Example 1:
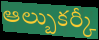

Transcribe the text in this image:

ఆల్బుకర్కీ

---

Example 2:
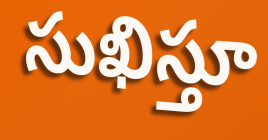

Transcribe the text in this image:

సుఖిస్తూ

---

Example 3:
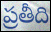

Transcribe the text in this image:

ప్రతీది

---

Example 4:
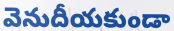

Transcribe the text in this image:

వెనుదీయకుండా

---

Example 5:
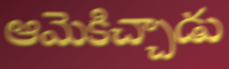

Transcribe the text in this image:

ఆమెకిచ్చాడు